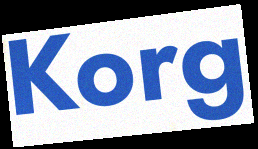
Korg